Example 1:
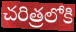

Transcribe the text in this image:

చరిత్రలోకి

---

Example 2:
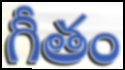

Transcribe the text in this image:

గీతం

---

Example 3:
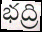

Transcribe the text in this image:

భద్రి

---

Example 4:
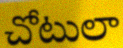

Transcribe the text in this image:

చోటులా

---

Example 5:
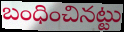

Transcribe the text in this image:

బంధించినట్టు